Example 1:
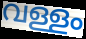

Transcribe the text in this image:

വള്ളം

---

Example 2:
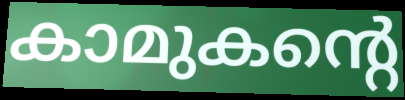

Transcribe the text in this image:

കാമുകന്റെ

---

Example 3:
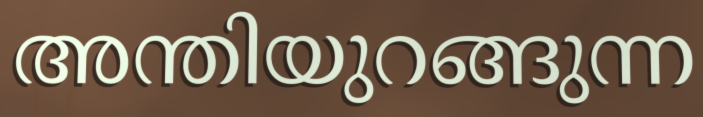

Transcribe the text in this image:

അന്തിയുറങ്ങുന്ന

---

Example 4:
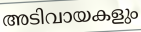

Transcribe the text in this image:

അടിവായകളും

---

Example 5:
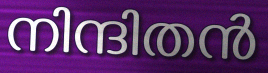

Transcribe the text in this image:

നിന്ദിതൻ